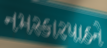
નમસ્કારપાઠને